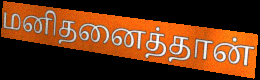
மனிதனைத்தான்